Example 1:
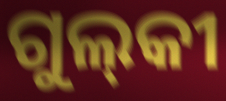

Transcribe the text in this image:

ଗୁଲ୍‌କୀ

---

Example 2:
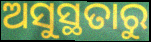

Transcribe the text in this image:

ଅସୁସ୍ଥତାରୁ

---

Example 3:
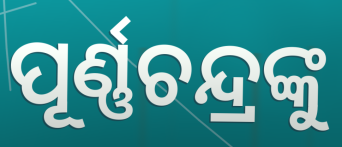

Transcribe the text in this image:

ପୂର୍ଣ୍ଣଚନ୍ଦ୍ରଙ୍କୁ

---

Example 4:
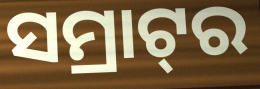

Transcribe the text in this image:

ସମ୍ରାଟ୍‌ର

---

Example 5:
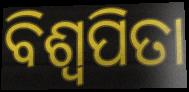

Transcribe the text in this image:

ବିଶ୍ଵପିତା